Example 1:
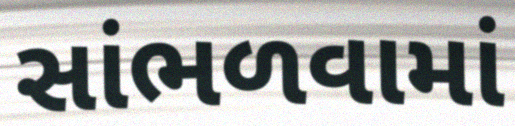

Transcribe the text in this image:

સાંભળવામાં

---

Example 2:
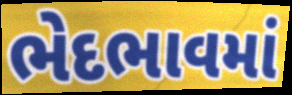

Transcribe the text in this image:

ભેદભાવમાં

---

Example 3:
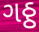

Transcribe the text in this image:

ગઠ્ઠ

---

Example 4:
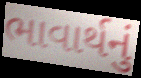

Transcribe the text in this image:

ભાવાર્થનું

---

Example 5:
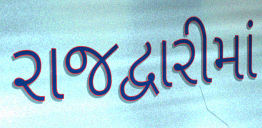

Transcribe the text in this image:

રાજદ્વારીમાં